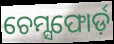
ଚେମ୍ସଫୋର୍ଡ଼